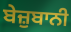
ਬੇਜ਼ੁਬਾਨੀ